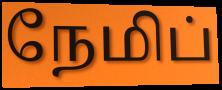
நேமிப்